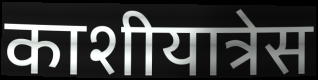
काशीयात्रेस